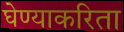
घेण्याकरिता